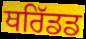
ਥਰਿੱਡਡ